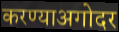
करण्याअगोदर